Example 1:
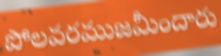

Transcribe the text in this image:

పోలవరముజమీందారు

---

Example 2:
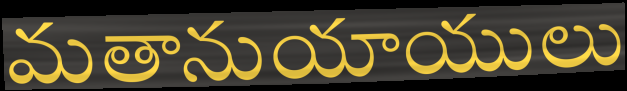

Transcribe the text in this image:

మతానుయాయులు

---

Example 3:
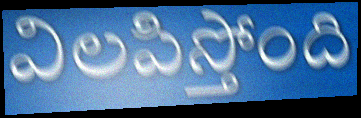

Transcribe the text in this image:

విలపిస్తోంది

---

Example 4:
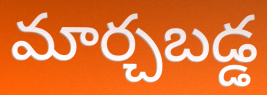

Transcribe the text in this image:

మార్చబడ్డ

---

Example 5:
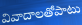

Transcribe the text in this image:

వివాదాలతోపాటు